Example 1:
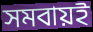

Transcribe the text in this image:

সমবায়ই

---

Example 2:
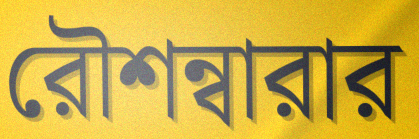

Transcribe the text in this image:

রৌশন্বারার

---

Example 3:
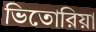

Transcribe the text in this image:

ভিতোরিয়া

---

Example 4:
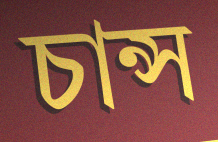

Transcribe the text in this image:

চান্স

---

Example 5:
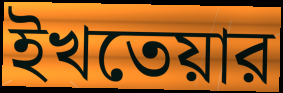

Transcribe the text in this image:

ইখতেয়ার